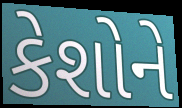
કેશોને